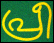
പ്രീ